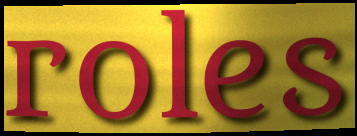
roles